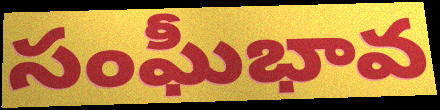
సంఘీభావ